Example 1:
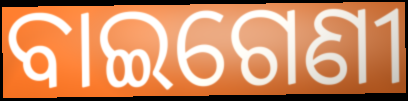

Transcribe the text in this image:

ବାଇଗେଣୀ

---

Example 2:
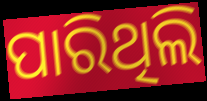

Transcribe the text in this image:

ପାରିଥିଲି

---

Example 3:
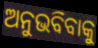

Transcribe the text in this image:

ଅନୁଭବିବାକୁ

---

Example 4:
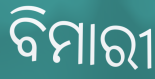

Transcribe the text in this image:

ବିମାରୀ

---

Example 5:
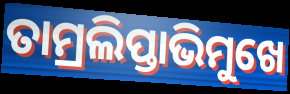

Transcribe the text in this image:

ତାମ୍ରଲିପ୍ତାଭିମୁଖେ